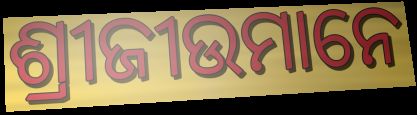
ଶ୍ରୀଜୀଉମାନେ